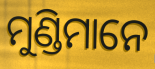
ମୁଣ୍ଡିମାନେ